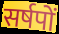
सर्षपों